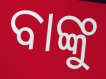
ବାଙ୍କୁ